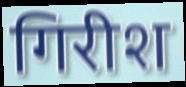
गिरीश